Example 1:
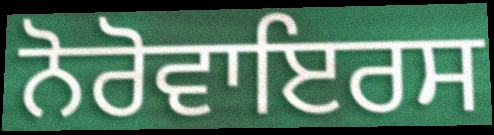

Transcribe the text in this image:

ਨੋਰੋਵਾਇਰਸ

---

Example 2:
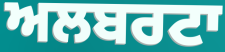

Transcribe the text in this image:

ਅਲਬਰਟਾ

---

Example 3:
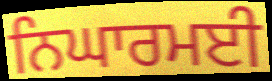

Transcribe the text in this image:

ਨਿਘਾਰਮਈ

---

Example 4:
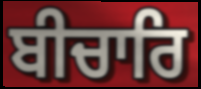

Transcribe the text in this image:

ਬੀਚਾਰਿ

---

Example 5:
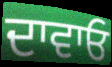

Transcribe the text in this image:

ਦਾਵਾਓ